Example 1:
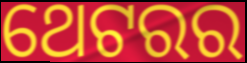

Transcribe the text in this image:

ଥେଟରର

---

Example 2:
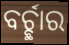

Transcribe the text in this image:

ବର୍ଚ୍ଛାର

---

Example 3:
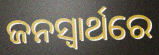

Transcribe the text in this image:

ଜନସ୍ୱାର୍ଥରେ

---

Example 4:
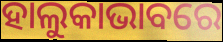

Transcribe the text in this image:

ହାଲୁକାଭାବରେ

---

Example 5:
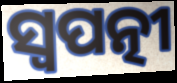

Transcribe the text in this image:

ସ୍ୱପତ୍ନୀ